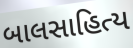
બાલસાહિત્ય